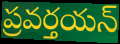
ప్రవర్తయన్